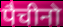
पैचीनो